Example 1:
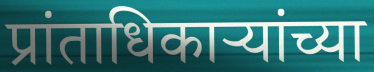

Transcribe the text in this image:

प्रांताधिकाऱ्यांच्या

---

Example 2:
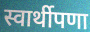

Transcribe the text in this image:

स्वार्थीपणा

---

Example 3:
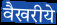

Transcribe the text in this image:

वैखरीये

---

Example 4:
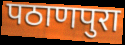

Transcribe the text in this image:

पठाणपुरा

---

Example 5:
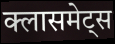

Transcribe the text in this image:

क्लासमेट्स